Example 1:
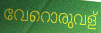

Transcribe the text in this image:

വേറൊരുവള്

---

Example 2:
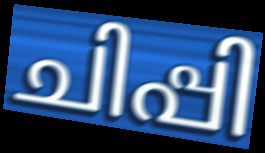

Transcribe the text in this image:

ചിപ്പി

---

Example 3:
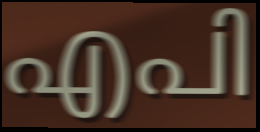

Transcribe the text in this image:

എപി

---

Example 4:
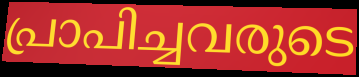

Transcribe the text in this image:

പ്രാപിച്ചവരുടെ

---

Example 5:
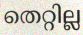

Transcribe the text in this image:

തെറ്റില്ല